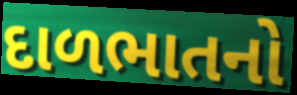
દાળભાતનો